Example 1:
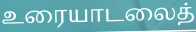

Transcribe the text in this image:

உரையாடலைத்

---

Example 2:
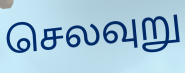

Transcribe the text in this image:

செலவுறு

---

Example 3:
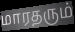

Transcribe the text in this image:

மாரதரும்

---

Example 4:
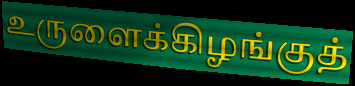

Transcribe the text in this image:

உருளைக்கிழங்குத்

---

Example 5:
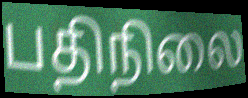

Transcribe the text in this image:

பதிநிலை